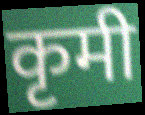
कृमी